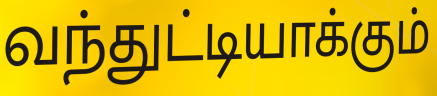
வந்துட்டியாக்கும்